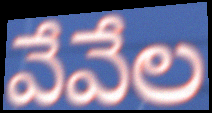
వేవేల